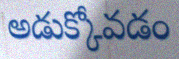
అడుక్కోవడం